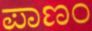
ಪಾಣಂ